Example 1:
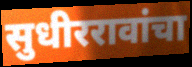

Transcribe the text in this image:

सुधीररावांचा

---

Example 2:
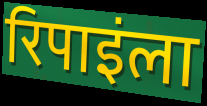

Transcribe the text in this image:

रिपाइंला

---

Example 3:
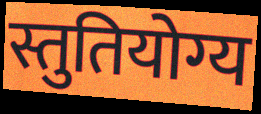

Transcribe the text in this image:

स्तुतियोग्य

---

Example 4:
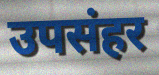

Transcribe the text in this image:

उपसंहर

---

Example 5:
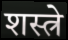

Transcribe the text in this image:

शस्त्रे